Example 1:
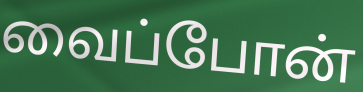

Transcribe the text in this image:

வைப்போன்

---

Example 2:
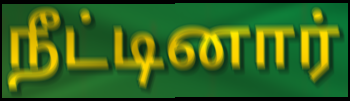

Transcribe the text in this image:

நீட்டினார்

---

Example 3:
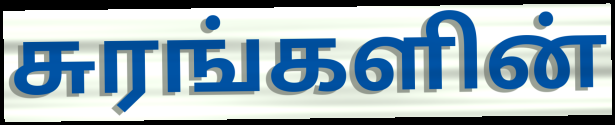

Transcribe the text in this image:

சுரங்களின்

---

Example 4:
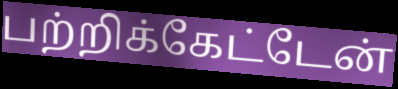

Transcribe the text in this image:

பற்றிக்கேட்டேன்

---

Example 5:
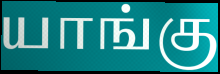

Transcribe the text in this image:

யாங்கு